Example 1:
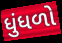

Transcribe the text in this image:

ધુંધળો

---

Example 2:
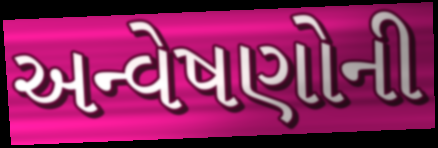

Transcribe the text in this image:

અન્વેષણોની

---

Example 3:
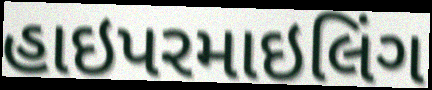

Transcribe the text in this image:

હાઇપરમાઇલિંગ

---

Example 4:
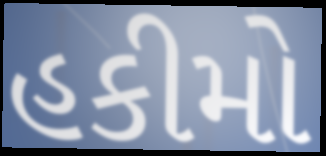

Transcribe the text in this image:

હકીમો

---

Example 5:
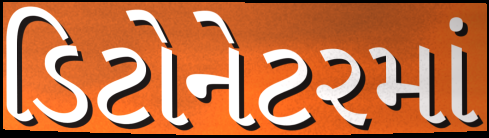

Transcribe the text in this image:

ડિટોનેટરમાં